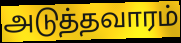
அடுத்தவாரம்